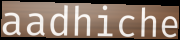
aadhiche